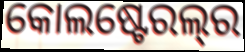
କୋଲଷ୍ଟେରଲ୍‌ର